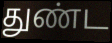
துண்ட